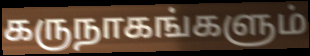
கருநாகங்களும்